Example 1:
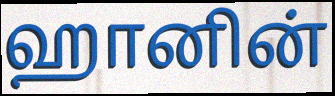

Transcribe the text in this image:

ஹானின்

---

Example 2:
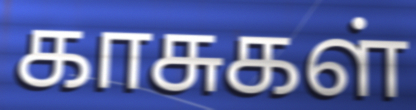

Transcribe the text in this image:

காசுகள்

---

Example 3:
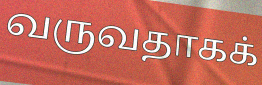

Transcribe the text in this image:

வருவதாகக்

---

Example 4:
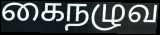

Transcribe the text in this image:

கைநழுவ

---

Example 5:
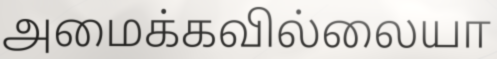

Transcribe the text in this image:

அமைக்கவில்லையா